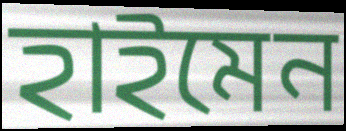
হাইমেন